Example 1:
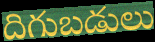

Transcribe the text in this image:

దిగుబడులు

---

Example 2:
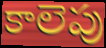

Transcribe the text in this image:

కాలెపు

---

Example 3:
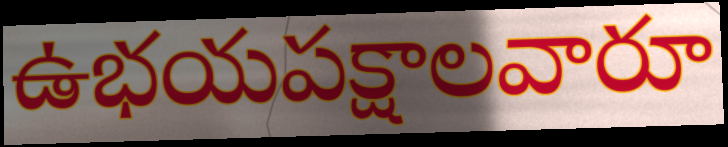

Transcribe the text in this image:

ఉభయపక్షాలవారూ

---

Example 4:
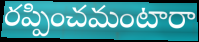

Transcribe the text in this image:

రప్పించమంటారా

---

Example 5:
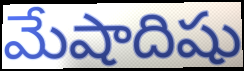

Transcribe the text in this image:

మేషాదిషు